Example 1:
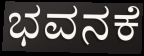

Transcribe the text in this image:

ಭವನಕೆ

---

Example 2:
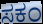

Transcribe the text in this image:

ಸಕಂ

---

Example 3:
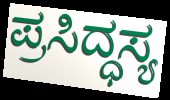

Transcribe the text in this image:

ಪ್ರಸಿದ್ಧಸ್ಯ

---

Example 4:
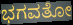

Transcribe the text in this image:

ಭಗವತೋ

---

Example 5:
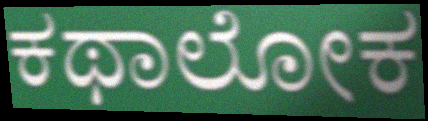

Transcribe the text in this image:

ಕಥಾಲೋಕ